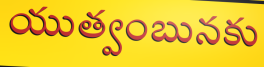
యుత్వంబునకు